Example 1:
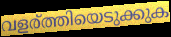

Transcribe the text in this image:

വളര്ത്തിയെടുക്കുക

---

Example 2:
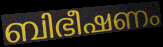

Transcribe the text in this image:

ബിഭീഷണം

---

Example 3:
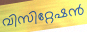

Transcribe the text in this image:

വിസിറ്റേഷൻ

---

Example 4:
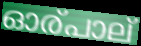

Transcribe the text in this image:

ഓര്പാല്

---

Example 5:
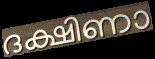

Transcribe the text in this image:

ദക്ഷിണാ